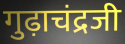
गुढ़ाचंद्रजी